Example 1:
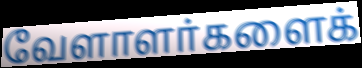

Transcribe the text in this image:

வேளாளர்களைக்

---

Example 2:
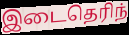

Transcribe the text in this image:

இடைதெரிந்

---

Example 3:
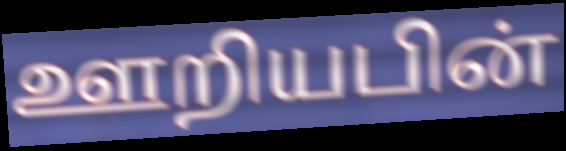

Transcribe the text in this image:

ஊறியபின்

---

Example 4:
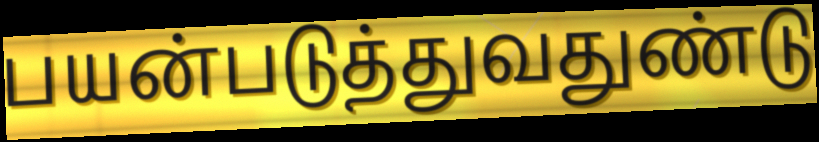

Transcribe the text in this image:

பயன்படுத்துவதுண்டு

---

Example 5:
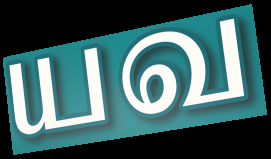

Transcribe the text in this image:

யவ